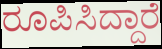
ರೂಪಿಸಿದ್ದಾರೆ